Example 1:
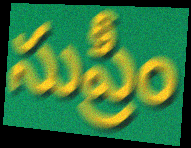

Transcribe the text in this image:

సుప్రీం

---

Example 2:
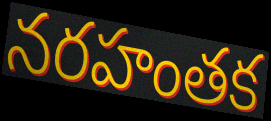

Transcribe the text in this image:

నరహంతక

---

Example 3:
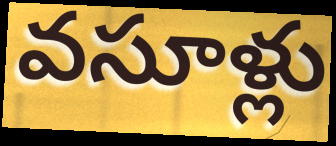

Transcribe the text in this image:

వసూళ్లు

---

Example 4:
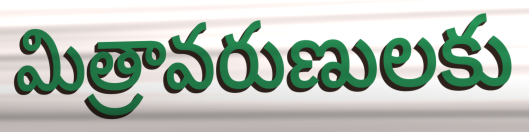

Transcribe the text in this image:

మిత్రావరుణులకు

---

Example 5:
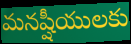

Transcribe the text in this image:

మనష్షీయులకు